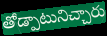
తోడ్పాటునిచ్చారు